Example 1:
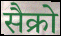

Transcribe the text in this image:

सैक्रो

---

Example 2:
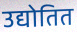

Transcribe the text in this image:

उद्योतित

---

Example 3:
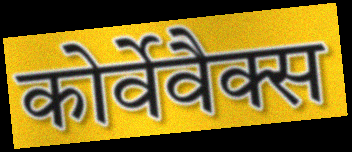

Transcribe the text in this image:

कोर्वेवैक्स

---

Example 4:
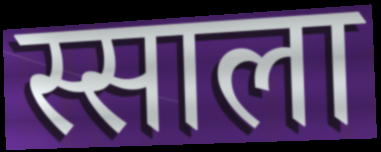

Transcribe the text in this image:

स्साला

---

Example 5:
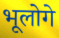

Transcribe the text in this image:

भूलोगे